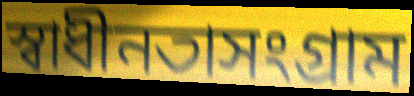
স্বাধীনতাসংগ্রাম